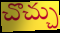
చొచ్చు